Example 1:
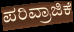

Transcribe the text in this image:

ಪರಿವ್ರಾಜಿಕೆ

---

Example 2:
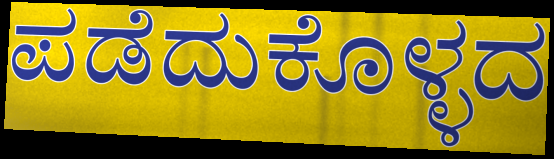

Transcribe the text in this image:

ಪಡೆದುಕೊಳ್ಳದ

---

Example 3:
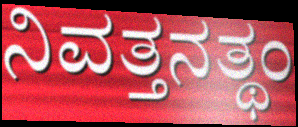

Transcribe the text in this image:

ನಿವತ್ತನತ್ಥಂ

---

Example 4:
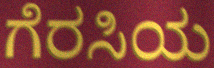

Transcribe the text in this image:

ಗೆರಸಿಯ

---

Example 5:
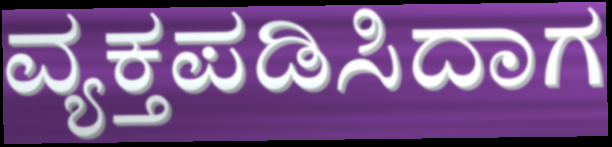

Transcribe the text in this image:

ವ್ಯಕ್ತಪಡಿಸಿದಾಗ